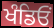
ਖੰਡਿਓਂ